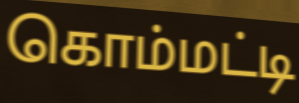
கொம்மட்டி